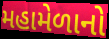
મહામેળાનો